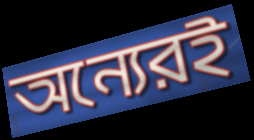
অন্যেরই